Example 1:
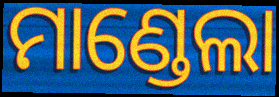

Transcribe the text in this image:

ମାଣ୍ଡେଲା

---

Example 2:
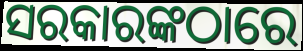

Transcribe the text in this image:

ସରକାରଙ୍କଠାରେ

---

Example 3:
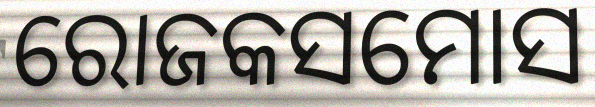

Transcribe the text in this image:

ରୋଜକସମୋସ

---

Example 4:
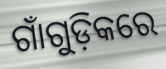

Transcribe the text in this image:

ଗାଁଗୁଡ଼ିକରେ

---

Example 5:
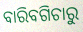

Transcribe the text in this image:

ବାରିବଗିଚାରୁ